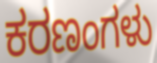
ಕರಣಂಗಳು